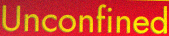
Unconfined